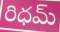
రిధమ్